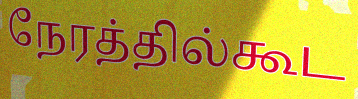
நேரத்தில்கூட